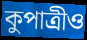
কুপাত্রীও